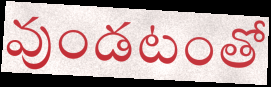
వుండటంతో